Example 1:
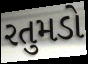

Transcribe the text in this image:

રતુમડો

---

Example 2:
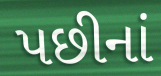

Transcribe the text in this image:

પછીનાં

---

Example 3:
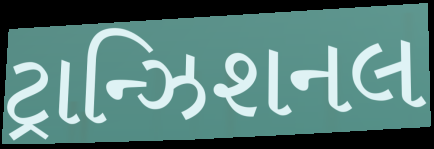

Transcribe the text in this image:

ટ્રાન્ઝિશનલ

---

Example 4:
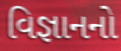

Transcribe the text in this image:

વિજ્ઞાનનો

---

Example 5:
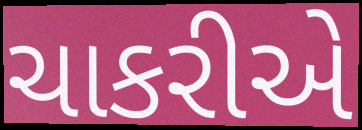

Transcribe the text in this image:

ચાકરીએ